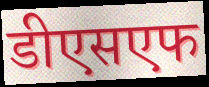
डीएसएफ